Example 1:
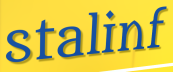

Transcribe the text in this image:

stalinf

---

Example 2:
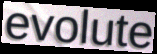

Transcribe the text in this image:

evolute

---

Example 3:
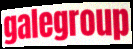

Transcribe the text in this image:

galegroup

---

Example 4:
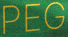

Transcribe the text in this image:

PEG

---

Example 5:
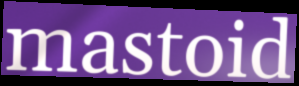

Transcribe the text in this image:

mastoid